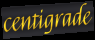
centigrade